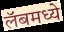
लॅबमध्ये